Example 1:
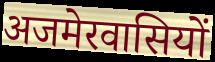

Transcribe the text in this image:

अजमेरवासियों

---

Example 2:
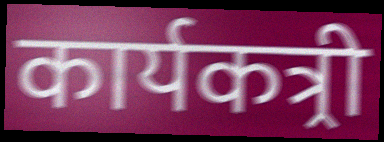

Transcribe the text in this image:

कार्यकत्र्री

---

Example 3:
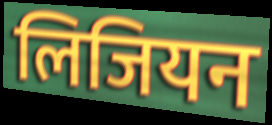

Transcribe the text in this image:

लिजियन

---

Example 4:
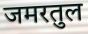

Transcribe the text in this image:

जमरतुल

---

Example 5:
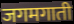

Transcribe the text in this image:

जगमगाती